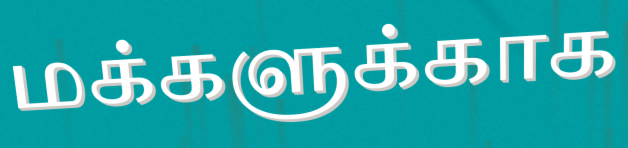
மக்களுக்காக